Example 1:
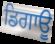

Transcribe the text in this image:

ਡਿਗਾਊ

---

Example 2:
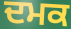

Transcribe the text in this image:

ਦਮਕ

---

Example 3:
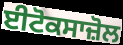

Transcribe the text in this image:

ਈਟੋਕਸਾਜ਼ੋਲ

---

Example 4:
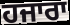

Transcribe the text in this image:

ਹਜਾਰਾ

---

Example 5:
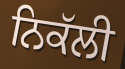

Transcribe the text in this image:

ਨਿਕੱਲੀ